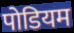
पोडियम